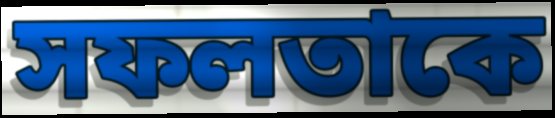
সফলতাকে